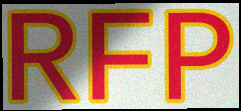
RFP